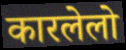
कारलेलो